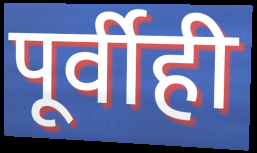
पूर्वीही